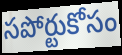
సపోర్టుకోసం